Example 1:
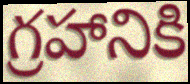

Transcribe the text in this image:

గ్రహానికి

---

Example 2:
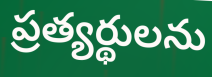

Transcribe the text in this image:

ప్రత్యర్థులను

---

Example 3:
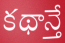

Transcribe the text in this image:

కథాన్తే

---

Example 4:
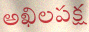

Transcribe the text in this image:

అఖిలపక్ష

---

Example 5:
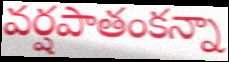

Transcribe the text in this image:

వర్షపాతంకన్నా